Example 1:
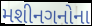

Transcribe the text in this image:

મશીનગનોના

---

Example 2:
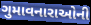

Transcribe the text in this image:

ગુમાવનારાઓની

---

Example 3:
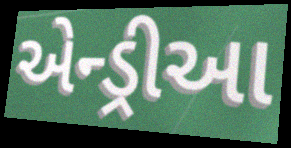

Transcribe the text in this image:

એન્ડ્રીઆ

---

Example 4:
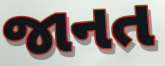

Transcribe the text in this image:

જાનત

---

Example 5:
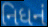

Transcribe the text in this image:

નિધનં